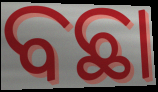
ବଛା